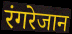
रंगरेजान